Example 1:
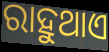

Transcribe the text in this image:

ରାହୁଥାଏ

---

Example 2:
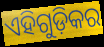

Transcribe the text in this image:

ଏହିଗୁଡ଼ିକର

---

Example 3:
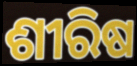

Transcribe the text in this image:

ଶୀରିଷ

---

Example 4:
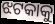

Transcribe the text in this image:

ଝଟକାକୁ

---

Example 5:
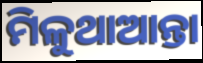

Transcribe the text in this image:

ମିଳୁଥାଆନ୍ତା